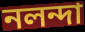
নলন্দা